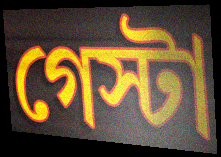
গেস্টা